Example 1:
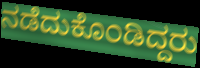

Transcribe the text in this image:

ನಡೆದುಕೊಂಡಿದ್ದರು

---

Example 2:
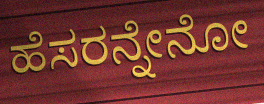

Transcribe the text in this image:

ಹೆಸರನ್ನೇನೋ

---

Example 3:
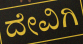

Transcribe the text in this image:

ದೇವಿಗಿ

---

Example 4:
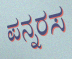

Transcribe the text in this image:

ಪನ್ನರಸ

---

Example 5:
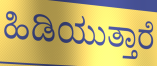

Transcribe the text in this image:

ಹಿಡಿಯುತ್ತಾರೆ